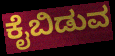
ಕೈಬಿಡುವ